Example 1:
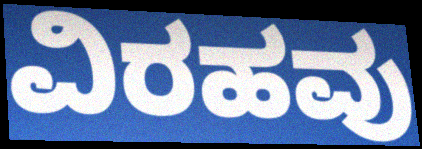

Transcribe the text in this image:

ವಿರಹವು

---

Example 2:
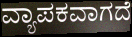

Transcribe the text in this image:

ವ್ಯಾಪಕವಾಗದೆ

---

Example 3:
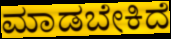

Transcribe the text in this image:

ಮಾಡಬೇಕಿದೆ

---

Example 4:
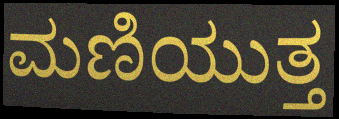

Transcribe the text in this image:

ಮಣಿಯುತ್ತ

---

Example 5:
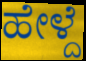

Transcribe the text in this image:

ಹೇಳ್ದೆ